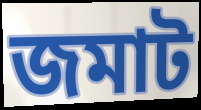
জমাট